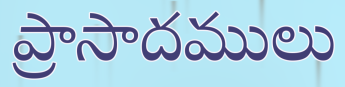
ప్రాసాదములు